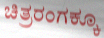
ಚಿತ್ರರಂಗಕ್ಕೂ